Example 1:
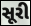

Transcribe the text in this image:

સૂરી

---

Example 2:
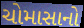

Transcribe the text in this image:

ચોમાસાનો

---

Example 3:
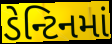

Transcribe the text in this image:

ડેન્ટિનમાં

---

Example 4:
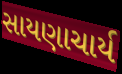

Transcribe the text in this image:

સાયણાચાર્ય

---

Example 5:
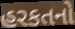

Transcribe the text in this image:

હરકતનો